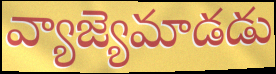
వ్యాజ్యెమాడడు